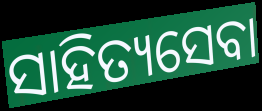
ସାହିତ୍ୟସେବା